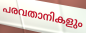
പരവതാനികളും